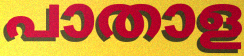
പാതാള